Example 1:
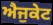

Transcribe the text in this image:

ਐਜੁਕੇਟ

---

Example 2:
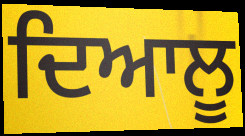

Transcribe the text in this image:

ਦਿਆਲੂ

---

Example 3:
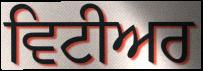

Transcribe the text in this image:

ਵਿਟੀਅਰ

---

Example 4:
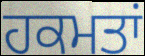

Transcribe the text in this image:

ਹਕਮਤਾਂ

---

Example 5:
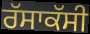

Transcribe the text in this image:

ਰੱਸਾਕੱਸੀ